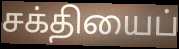
சக்தியைப்